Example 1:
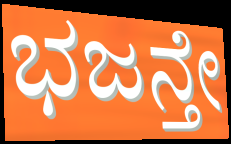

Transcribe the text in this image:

ಭಜನ್ತೇ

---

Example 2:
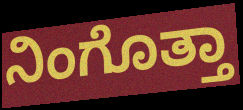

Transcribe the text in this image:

ನಿಂಗೊತ್ತಾ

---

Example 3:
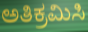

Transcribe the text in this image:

ಅತಿಕ್ರಮಿಸಿ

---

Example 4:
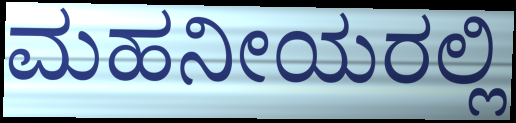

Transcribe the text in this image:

ಮಹನೀಯರಲ್ಲಿ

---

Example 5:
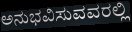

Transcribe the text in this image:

ಅನುಭವಿಸುವವರಲ್ಲಿ